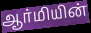
ஆர்மியின்